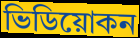
ভিডিয়োকন